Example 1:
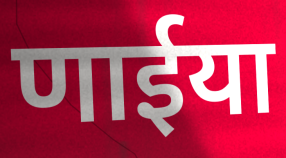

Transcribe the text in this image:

णाईया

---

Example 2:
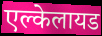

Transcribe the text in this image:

एल्केलायड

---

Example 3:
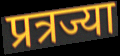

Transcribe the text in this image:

प्रत्रज्या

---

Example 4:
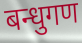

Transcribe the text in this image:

बन्धुगण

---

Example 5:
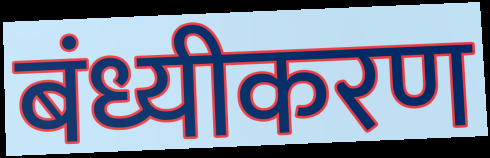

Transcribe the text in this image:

बंध्यीकरण